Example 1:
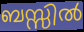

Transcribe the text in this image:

ബസ്സിൽ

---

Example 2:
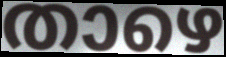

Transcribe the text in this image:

താഴെ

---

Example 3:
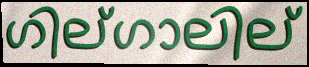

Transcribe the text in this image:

ഗില്ഗാലില്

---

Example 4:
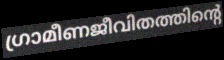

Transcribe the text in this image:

ഗ്രാമീണജീവിതത്തിന്റെ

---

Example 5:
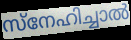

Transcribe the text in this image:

സ്നേഹിച്ചാൽ